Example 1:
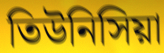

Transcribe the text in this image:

তিউনিসিয়া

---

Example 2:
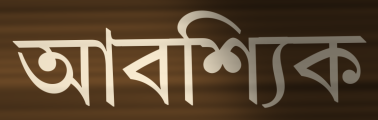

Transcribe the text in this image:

আবশ্যিক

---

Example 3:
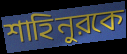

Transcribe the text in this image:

শাহিনুরকে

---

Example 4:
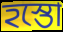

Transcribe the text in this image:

হস্তো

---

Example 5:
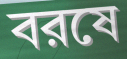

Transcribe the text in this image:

বরষে